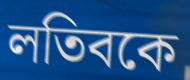
লতিবকে